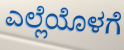
ಎಲ್ಲೆಯೊಳಗೆ